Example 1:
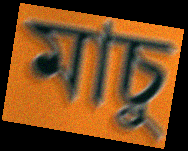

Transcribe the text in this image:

মাচু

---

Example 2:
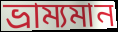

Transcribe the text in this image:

ভ্রাম্যমান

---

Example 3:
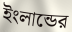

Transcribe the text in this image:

ইংলান্ডের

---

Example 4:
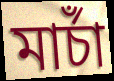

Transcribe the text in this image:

মার্চাঁ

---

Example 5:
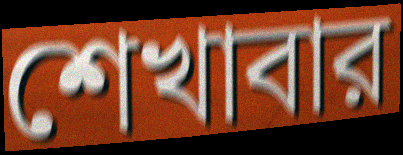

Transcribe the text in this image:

শেখাবার